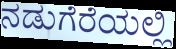
ನಡುಗೆರೆಯಲ್ಲಿ